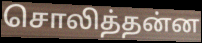
சொலித்தன்ன